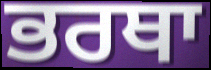
ਭਰਥਾ